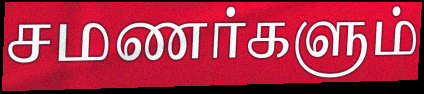
சமணர்களும்